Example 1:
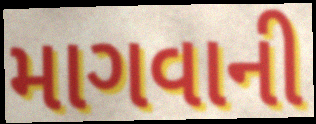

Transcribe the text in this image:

માગવાની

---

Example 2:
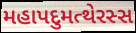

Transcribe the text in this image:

મહાપદુમત્થેરસ્સ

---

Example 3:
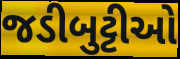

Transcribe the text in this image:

જડીબુટ્ટીઓ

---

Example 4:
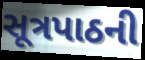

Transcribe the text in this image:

સૂત્રપાઠની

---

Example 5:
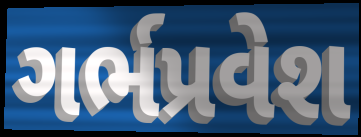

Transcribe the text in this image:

ગર્ભપ્રવેશ